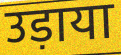
उड़ाया